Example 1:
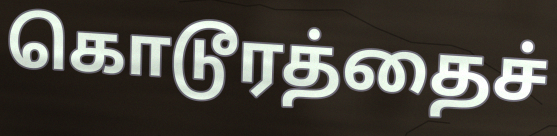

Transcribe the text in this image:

கொடூரத்தைச்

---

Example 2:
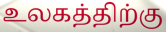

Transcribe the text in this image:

உலகத்திற்கு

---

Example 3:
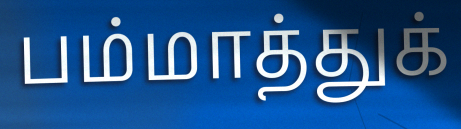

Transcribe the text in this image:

பம்மாத்துக்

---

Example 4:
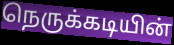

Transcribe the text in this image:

நெருக்கடியின்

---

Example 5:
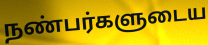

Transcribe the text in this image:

நண்பர்களுடைய